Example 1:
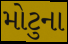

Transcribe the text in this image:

મોટુના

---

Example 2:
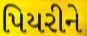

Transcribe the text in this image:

પિયરીને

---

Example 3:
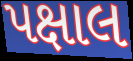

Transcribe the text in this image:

પક્ષાલ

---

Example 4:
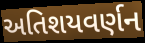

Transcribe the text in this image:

અતિશયવર્ણન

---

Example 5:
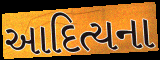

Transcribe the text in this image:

આદિત્યના